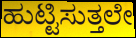
ಹುಟ್ಟಿಸುತ್ತಲೇ